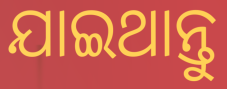
ଯାଇଥାନ୍ତୁ